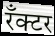
रँक्टर